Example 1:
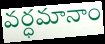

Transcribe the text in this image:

వర్ధమానాం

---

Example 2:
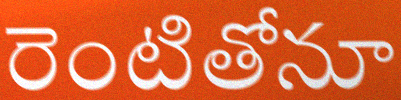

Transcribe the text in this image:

రెంటితోనూ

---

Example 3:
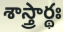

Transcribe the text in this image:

శాస్త్రార్థః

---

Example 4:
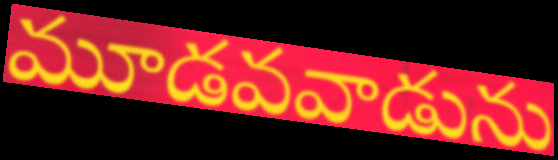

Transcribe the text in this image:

మూడవవాడును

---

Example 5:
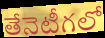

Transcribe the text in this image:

తేనెటీగలో